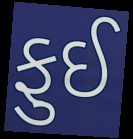
ફુઈ